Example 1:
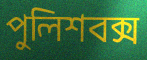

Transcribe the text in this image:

পুলিশবক্স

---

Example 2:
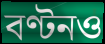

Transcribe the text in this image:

বণ্টনও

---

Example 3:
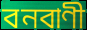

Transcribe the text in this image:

বনবাণী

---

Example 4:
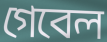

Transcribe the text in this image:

গেবেল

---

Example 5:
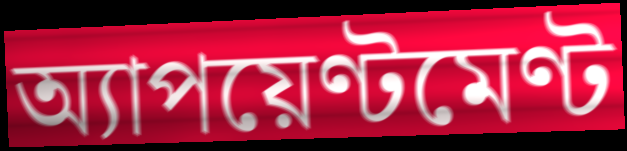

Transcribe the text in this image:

অ্যাপয়েণ্টমেণ্ট